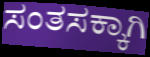
ಸಂತಸಕ್ಕಾಗಿ